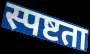
स्पष्टता